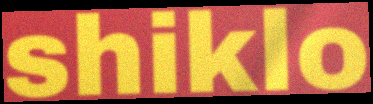
shiklo